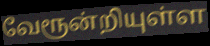
வேரூன்றியுள்ள